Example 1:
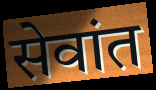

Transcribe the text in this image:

सेवांत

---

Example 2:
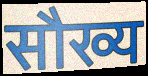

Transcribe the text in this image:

सौख्य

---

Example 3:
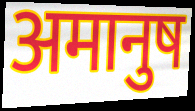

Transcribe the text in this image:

अमानुष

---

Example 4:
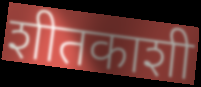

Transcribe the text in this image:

शीतकाशी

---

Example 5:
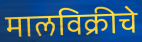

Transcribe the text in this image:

मालविक्रीचे